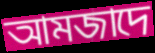
আমজাদে